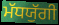
ਮੱਧਯੁੱਗੀ